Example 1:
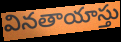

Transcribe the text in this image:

వినతాయాస్తు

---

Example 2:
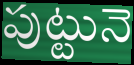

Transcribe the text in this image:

పుట్టునె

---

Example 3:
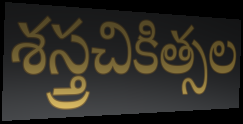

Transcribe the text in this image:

శస్త్రచికిత్సల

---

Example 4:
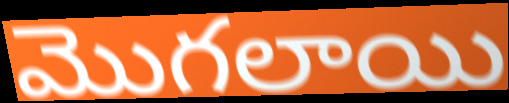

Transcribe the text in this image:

మొగలాయి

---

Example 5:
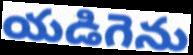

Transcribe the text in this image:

యడిగెను